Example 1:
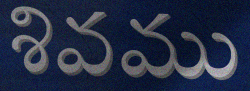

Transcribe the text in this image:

శివము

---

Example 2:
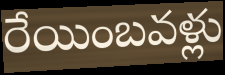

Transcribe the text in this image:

రేయింబవళ్లు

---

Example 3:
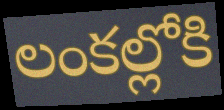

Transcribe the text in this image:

లంకల్లోకి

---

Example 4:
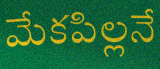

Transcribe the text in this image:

మేకపిల్లనే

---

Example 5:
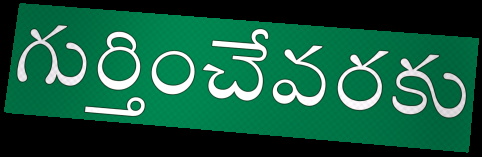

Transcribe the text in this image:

గుర్తించేవరకు